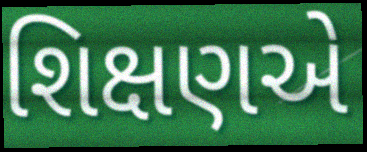
શિક્ષણએ